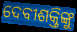
ଦେବୀଶକ୍ତିଙ୍କୁ